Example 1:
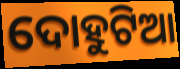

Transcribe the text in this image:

ଦୋହୁଟିଆ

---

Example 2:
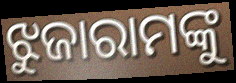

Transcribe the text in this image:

ଝୁଜାରାମଙ୍କୁ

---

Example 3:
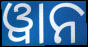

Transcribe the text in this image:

ୱାନ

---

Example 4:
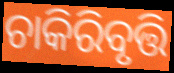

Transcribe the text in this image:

ଚାକିରିବୃତ୍ତି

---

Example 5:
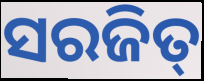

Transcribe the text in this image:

ସରଜିତ୍